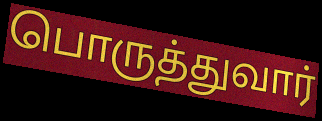
பொருத்துவார்